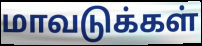
மாவடுக்கள்